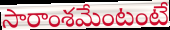
సారాంశమేంటంటే